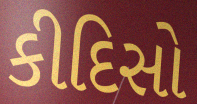
કીદિસો